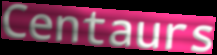
Centaurs